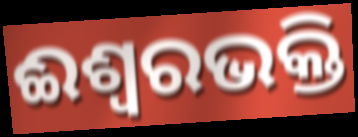
ଈଶ୍ୱରଭକ୍ତି